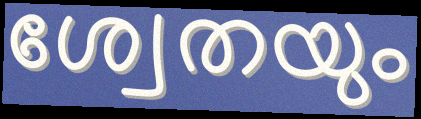
ശ്വേതയും